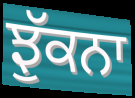
ਝੁੱਕਨਾ